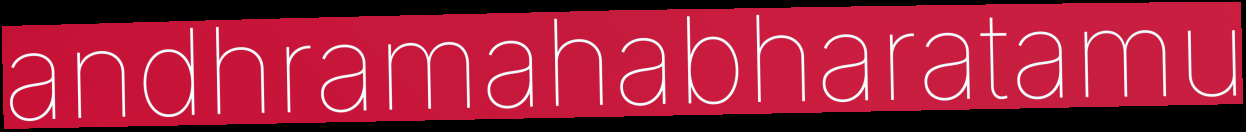
andhramahabharatamu